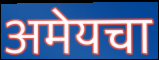
अमेयचा